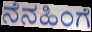
ನೆನಹಿಂಗೆ